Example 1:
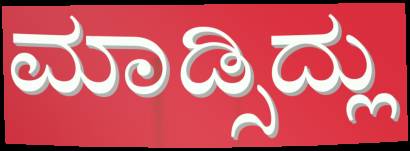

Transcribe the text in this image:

ಮಾಡ್ಸಿದ್ಲು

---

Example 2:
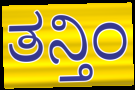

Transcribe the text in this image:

ತನ್ತಿಂ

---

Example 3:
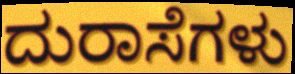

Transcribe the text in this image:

ದುರಾಸೆಗಳು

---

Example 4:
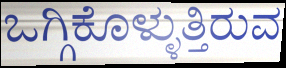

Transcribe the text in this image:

ಒಗ್ಗಿಕೊಳ್ಳುತ್ತಿರುವ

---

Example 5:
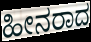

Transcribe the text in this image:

ಹೀನರಾದ